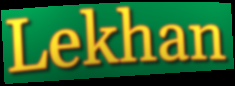
Lekhan